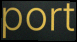
port